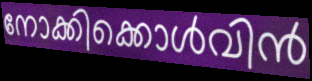
നോക്കിക്കൊൾവിൻ